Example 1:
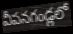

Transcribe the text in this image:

వీపనగండ్లలో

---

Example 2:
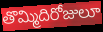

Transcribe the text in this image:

తొమ్మిదిరోజులూ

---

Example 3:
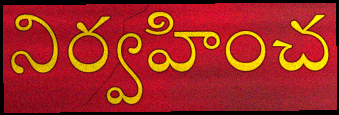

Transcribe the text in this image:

నిర్వహించ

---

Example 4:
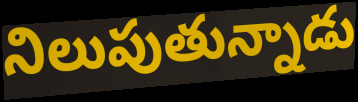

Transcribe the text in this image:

నిలుపుతున్నాడు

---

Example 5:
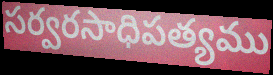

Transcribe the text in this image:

సర్వరసాధిపత్యము